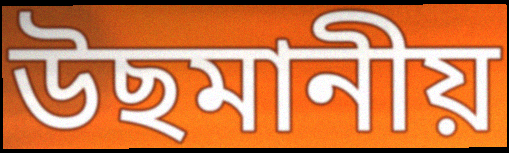
উছমানীয়